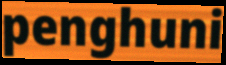
penghuni